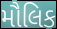
મૌલિક